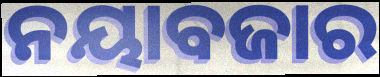
ନୟାବଜାର